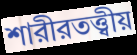
শারীরতত্ত্বীয়